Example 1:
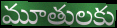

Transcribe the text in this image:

మూతులకు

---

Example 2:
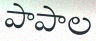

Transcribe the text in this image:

పాపాల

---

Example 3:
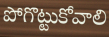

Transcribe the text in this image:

పోగొట్టుకోవాలి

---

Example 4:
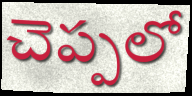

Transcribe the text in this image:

చెప్పలో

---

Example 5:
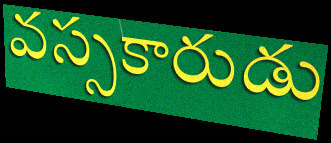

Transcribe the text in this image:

వస్సకారుడు